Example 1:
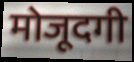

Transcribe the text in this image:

मोजूदगी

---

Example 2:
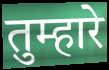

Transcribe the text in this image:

तुम्हारे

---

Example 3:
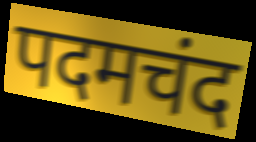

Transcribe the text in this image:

पदमचंद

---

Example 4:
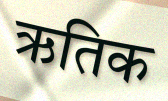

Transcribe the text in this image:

ऋतिक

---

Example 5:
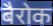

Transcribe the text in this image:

बैरोक